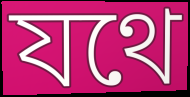
যথে